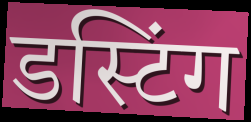
डस्टिंग